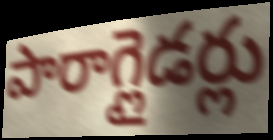
పారాగ్లైడర్లు